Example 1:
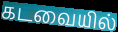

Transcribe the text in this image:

கடவையில்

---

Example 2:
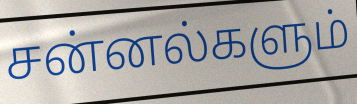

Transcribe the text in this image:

சன்னல்களும்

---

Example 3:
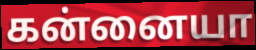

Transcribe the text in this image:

கன்னையா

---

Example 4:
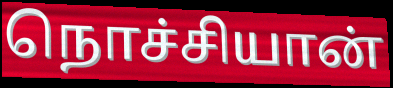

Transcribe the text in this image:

நொச்சியான்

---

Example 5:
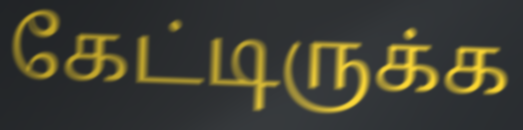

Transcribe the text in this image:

கேட்டிருக்க